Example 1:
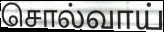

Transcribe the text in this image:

சொல்வாய்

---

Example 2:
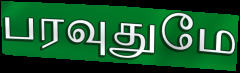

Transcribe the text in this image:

பரவுதுமே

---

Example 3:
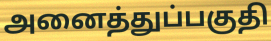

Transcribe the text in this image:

அனைத்துப்பகுதி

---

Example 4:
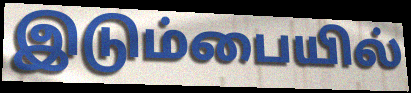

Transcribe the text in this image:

இடும்பையில்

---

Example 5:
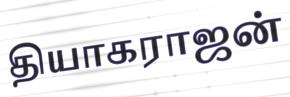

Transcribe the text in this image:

தியாகராஜன்